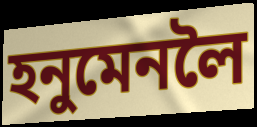
হনুমেনলৈ